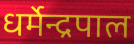
धर्मेन्द्रपाल